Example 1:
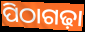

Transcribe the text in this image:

ପିଠାଗଢ଼ା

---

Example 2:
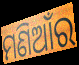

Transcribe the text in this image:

ମଣିଆଁର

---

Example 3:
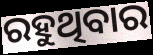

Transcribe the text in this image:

ରହୁଥିବାର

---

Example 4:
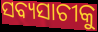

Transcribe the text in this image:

ସବ୍ୟସାଚୀକୁ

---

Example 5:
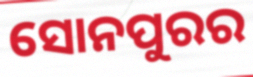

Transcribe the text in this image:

ସୋନପୁରର